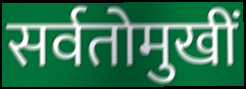
सर्वतोमुखीं